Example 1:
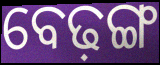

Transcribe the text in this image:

ବେଢ଼ଙ୍ଗ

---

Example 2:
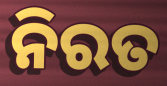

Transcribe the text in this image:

ନିରତ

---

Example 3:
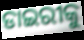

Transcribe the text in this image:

ଡାଇରୀକୁ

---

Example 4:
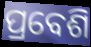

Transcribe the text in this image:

ପ୍ରବେଶି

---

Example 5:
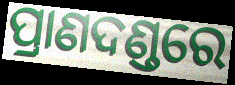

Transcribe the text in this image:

ପ୍ରାଣଦଣ୍ଡରେ